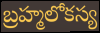
బ్రహ్మలోకస్య